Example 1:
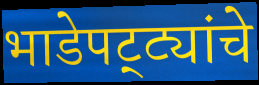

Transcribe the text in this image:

भाडेपट्ट्यांचे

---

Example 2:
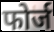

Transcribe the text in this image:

फोर्ज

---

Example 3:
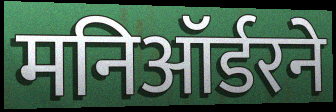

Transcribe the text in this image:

मनिऑर्डरने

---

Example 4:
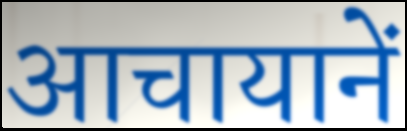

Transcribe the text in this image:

आचायानें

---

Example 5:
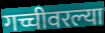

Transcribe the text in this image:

गच्चीवरल्या